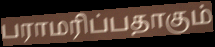
பராமரிப்பதாகும்